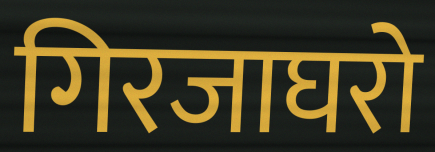
गिरजाघरो